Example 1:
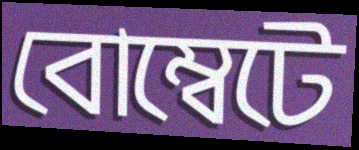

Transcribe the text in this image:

বোম্বেটে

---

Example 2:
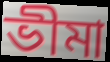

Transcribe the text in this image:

ভীমা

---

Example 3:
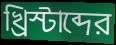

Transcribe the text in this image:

খ্রিস্টাব্দের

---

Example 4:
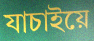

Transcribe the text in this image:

যাচাইয়ে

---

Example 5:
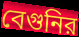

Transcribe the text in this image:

বেগুনির